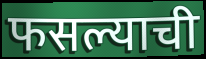
फसल्याची